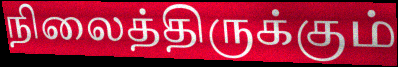
நிலைத்திருக்கும்